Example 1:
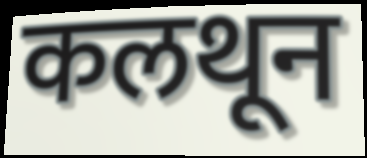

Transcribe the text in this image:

कलथून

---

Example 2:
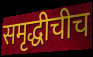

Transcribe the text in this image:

समृद्धीचीच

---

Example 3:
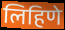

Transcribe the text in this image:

लिहिणे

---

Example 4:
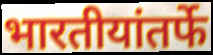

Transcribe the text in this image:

भारतीयांतर्फे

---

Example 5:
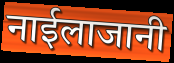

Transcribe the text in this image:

नाईलाजानी